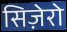
सिज़ेरो